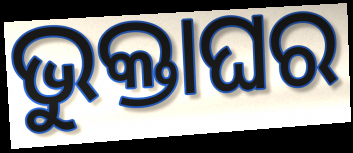
ଭୁକ୍ତାଘର